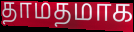
தாமதமாக